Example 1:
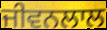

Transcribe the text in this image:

ਜੀਵਨਲਾਲ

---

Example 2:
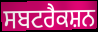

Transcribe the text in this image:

ਸਬਟਰੈਕਸ਼ਨ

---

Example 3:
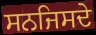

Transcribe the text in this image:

ਸਨਜਿਸਦੇ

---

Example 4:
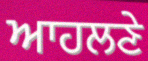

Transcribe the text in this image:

ਆਹਲਣੇ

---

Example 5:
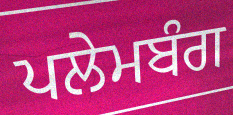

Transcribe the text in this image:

ਪਲੇਮਬੰਗ